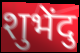
शुभेंदु